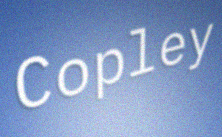
Copley